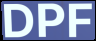
DPF